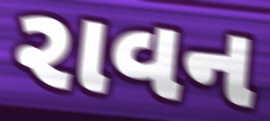
રાવન